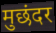
मुछंदर